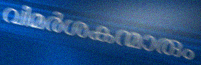
വിമർശകന്മാരും